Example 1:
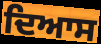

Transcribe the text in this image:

ਦਿਆਸ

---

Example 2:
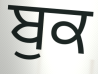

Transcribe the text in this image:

ਬੁਕ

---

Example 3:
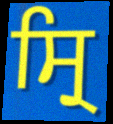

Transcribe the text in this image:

ਸ੍ਰਿ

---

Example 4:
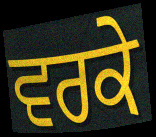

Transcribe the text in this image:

ਵਰਕੇ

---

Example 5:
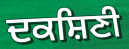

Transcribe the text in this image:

ਦਕਸ਼ਿਣੀ